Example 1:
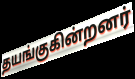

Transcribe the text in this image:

தயங்குகின்றனர்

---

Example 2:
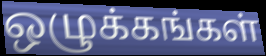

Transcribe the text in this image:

ஒழுக்கங்கள்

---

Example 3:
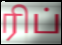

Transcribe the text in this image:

ரிப்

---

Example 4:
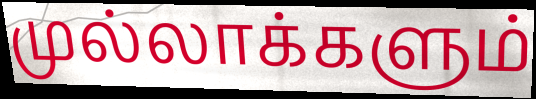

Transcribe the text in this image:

முல்லாக்களும்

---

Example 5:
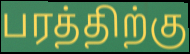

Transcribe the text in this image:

பரத்திற்கு